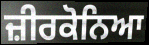
ਜ਼ੀਰਕੋਨਿਆ